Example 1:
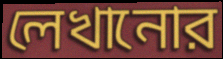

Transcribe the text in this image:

লেখানোর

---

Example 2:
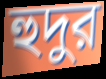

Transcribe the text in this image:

হুদুর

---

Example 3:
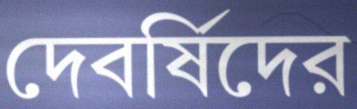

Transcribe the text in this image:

দেবর্ষিদের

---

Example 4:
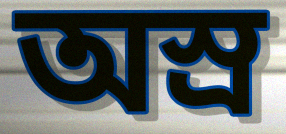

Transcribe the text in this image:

অস্র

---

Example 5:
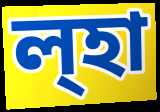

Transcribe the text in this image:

ল্হা